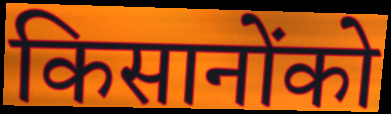
किसानोंको